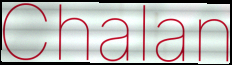
Chalan